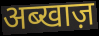
अब्खाज़